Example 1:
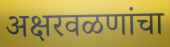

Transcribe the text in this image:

अक्षरवळणांचा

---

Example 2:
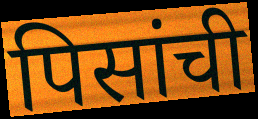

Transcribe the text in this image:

पिसांची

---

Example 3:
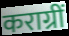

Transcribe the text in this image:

कराग्रीं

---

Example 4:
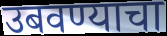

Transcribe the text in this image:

उबवण्याचा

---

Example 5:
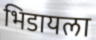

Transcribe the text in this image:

भिडायला